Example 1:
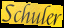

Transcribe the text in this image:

Schuler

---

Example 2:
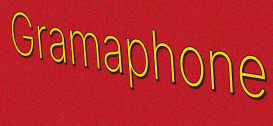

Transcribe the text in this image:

Gramaphone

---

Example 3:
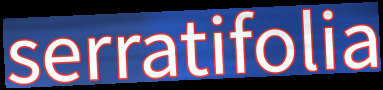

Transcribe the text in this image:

serratifolia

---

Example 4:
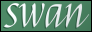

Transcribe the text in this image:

swan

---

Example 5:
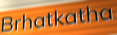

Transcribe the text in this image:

Brhatkatha